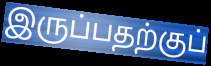
இருப்பதற்குப்